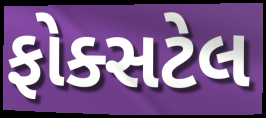
ફોક્સટેલ